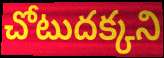
చోటుదక్కని